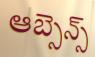
ఆబ్సెన్స్